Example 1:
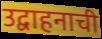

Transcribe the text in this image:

उद्वाहनाची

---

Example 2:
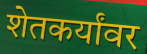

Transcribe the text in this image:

शेतकर्यांवर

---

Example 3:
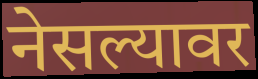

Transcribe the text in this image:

नेसल्यावर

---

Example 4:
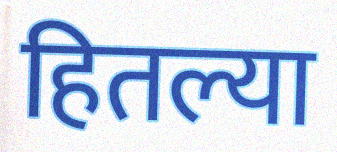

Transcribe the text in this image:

हितल्या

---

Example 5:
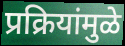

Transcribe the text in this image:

प्रक्रियांमुळे